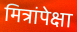
मित्रांपेक्षा